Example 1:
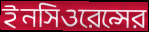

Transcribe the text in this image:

ইনসিওরেন্সের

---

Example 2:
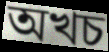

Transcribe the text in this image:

অখচ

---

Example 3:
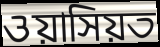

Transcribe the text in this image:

ওয়াসিয়ত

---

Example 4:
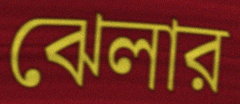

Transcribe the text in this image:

ঝেলার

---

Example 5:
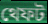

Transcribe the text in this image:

থেফট